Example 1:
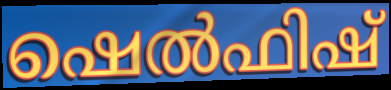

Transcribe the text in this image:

ഷെൽഫിഷ്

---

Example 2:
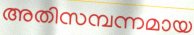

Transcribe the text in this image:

അതിസമ്പന്നമായ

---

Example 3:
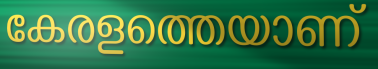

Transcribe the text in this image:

കേരളത്തെയാണ്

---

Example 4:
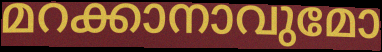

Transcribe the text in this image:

മറക്കാനാവുമോ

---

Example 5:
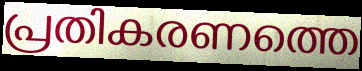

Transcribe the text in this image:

പ്രതികരണത്തെ